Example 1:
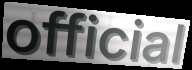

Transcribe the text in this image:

official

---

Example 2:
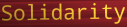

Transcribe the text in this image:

Solidarity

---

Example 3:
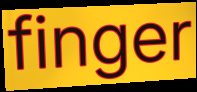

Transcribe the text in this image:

finger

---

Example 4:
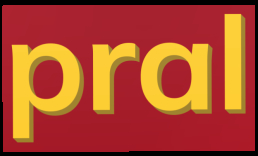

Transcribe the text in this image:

pral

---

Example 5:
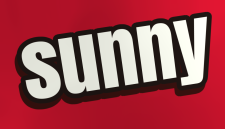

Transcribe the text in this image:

sunny